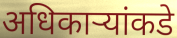
अधिकार्‍यांकडे